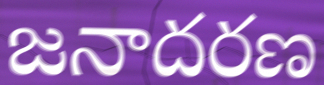
జనాదరణ